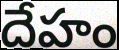
దేహం